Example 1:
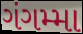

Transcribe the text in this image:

ગંગમ્મા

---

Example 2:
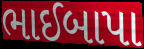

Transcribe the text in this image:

ભાઈબાપા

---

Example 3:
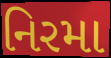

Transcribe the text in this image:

નિરમા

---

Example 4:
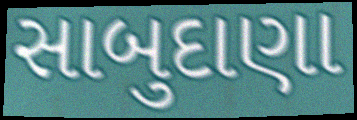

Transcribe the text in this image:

સાબુદાણા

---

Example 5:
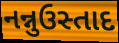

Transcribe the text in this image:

નન્નુઉસ્તાદ